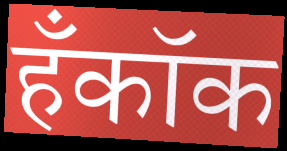
हँकॉक